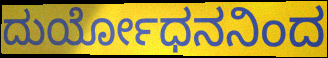
ದುರ್ಯೋಧನನಿಂದ